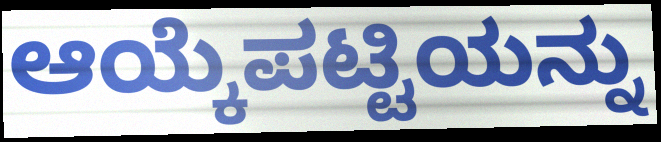
ಆಯ್ಕೆಪಟ್ಟಿಯನ್ನು